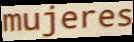
mujeres